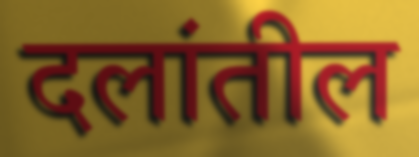
दलांतील